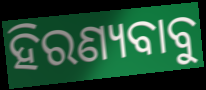
ହିରଣ୍ୟବାବୁ